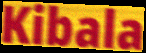
Kibala